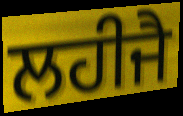
ਲਹੀਜੈ